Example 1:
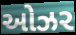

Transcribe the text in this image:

ઓઝર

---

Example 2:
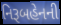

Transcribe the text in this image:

નિરૂબહેનની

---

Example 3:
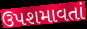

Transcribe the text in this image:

ઉપશમાવતાં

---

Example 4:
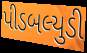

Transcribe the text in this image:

પીડબલ્યુડી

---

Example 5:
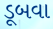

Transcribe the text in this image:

ડૂબવા